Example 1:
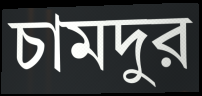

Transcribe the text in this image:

চামদুর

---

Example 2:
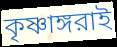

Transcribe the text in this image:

কৃষ্ণাঙ্গরাই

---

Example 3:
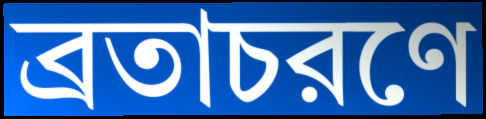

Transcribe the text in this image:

ব্রতাচরণে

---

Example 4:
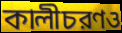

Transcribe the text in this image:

কালীচরণও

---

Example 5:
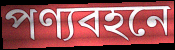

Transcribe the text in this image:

পণ্যবহনে